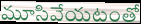
మూసివేయటంతో